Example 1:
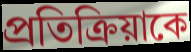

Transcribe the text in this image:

প্রতিক্রিয়াকে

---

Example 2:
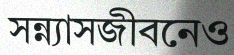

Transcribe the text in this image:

সন্ন্যাসজীবনেও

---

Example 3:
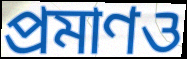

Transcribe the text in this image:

প্রমাণও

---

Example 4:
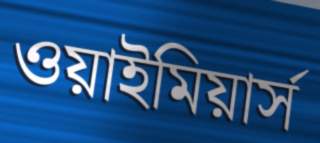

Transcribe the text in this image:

ওয়াইমিয়ার্স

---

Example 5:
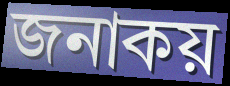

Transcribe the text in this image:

জনাকয়